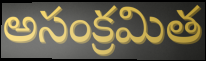
అసంక్రమిత